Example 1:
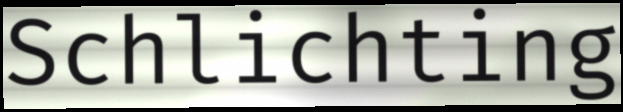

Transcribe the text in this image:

Schlichting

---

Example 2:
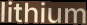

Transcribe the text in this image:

lithium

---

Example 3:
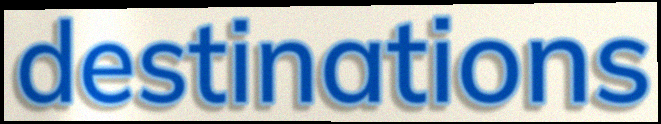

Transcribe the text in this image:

destinations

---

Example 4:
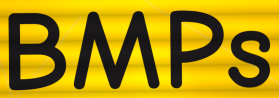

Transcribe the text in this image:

BMPs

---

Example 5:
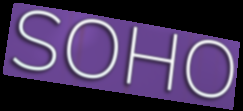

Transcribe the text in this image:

SOHO